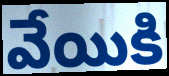
వేయికి